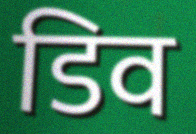
डिव